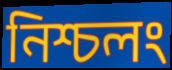
নিশ্চলং